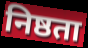
निष्ठता